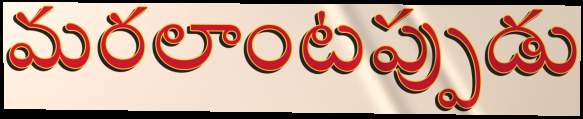
మరలాంటప్పుడు